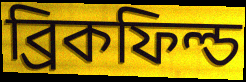
ব্রিকফিল্ড